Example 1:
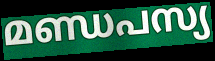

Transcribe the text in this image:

മണ്ഡപസ്യ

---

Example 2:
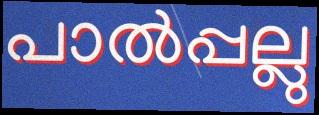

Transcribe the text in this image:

പാൽപ്പല്ലു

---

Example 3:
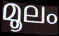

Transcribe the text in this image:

മൂലം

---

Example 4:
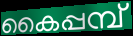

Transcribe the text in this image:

കൈപ്പമ്പ്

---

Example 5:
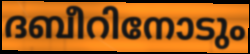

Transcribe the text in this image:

ദബീറിനോടും